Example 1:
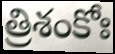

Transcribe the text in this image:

త్రిశంకోః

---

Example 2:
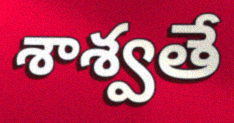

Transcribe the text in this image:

శాశ్వతే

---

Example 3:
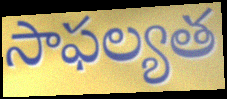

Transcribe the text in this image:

సాఫల్యత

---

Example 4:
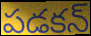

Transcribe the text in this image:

పడకన్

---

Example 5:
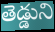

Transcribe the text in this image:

తెడ్డుని